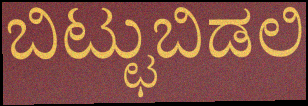
ಬಿಟ್ಟುಬಿಡಲಿ